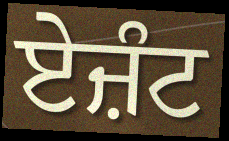
ਏਜ਼ੰਟ